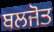
ਬਲਜੋਤ